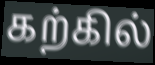
கற்கில்